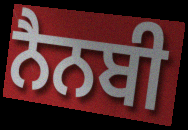
ਨੈਨਬੀ